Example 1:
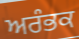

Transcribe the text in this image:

ਅਰੰਭਕ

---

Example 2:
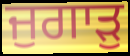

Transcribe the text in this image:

ਜੁਗਾੜੁ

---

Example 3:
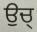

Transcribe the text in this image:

ਉਚ੍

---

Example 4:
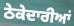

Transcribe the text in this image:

ਠੇਕੇਦਾਰੀਆਂ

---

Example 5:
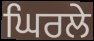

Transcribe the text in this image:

ਘਿਰਲੇ